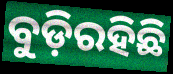
ବୁଡ଼ିରହିଛି